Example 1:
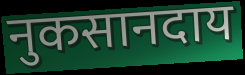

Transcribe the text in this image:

नुकसानदाय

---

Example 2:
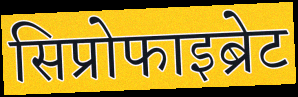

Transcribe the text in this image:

सिप्रोफाइब्रेट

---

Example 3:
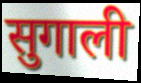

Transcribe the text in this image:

सुगाली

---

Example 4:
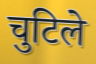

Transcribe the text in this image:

चुटिले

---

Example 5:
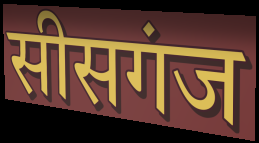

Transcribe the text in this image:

सीसगंज